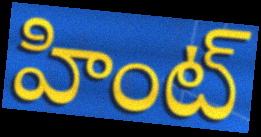
హింట్